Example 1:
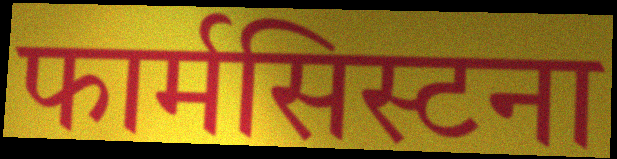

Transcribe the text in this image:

फार्मसिस्टना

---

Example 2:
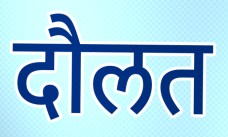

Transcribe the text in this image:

दौलत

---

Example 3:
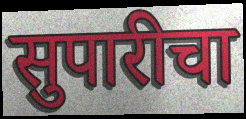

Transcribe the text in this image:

सुपारीचा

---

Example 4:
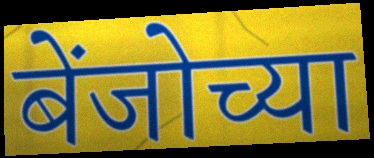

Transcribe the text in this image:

बेंजोच्या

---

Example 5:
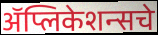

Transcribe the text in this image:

ॲप्लिकेशन्सचे